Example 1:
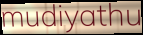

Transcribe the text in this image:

mudiyathu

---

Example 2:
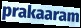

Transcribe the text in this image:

prakaaram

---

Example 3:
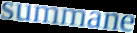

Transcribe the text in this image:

summane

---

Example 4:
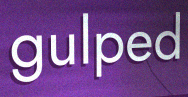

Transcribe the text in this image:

gulped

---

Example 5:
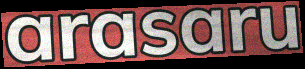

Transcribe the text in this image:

arasaru